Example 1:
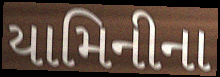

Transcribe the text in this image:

યામિનીના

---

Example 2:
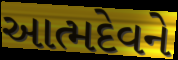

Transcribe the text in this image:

આત્મદેવને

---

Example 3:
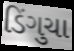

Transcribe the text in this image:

ડિંગુચા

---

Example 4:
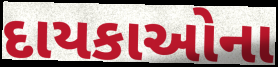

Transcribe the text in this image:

દાયકાઓના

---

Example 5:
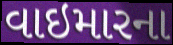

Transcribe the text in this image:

વાઇમારના